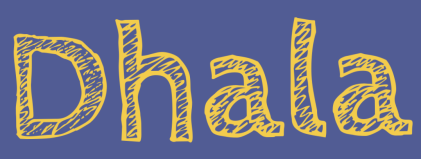
Dhala